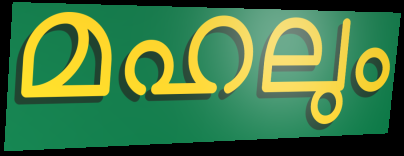
മഹലും